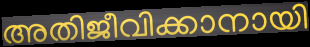
അതിജീവിക്കാനായി